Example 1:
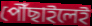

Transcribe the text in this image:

পৌঁছাইলেই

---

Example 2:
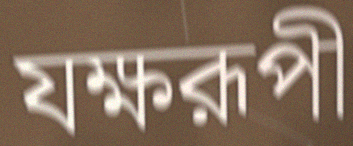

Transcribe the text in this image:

যক্ষরূপী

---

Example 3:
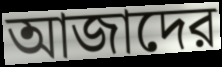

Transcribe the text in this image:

আজাদের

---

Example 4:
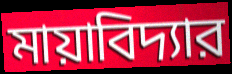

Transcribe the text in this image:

মায়াবিদ্যার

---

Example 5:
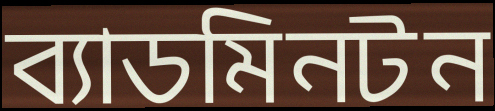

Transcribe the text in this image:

ব্যাডমিনটন